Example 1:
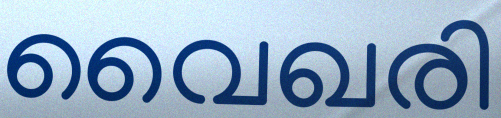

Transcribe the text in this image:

വൈഖരി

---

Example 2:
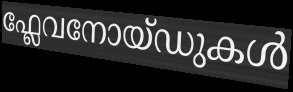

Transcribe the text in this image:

ഫ്ലേവനോയ്ഡുകൾ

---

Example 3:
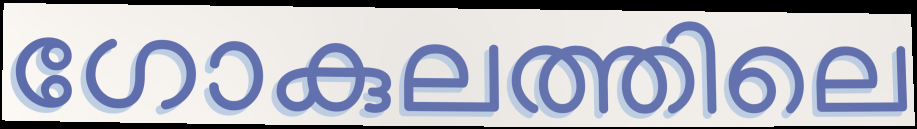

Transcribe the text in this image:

ഗോകുലത്തിലെ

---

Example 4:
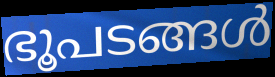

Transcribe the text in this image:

ഭൂപടങ്ങൾ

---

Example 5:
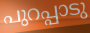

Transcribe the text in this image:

പുറപ്പാടു